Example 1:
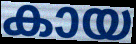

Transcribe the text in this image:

കായ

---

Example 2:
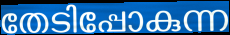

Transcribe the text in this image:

തേടിപ്പോകുന്ന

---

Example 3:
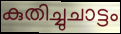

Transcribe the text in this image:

കുതിച്ചുചാട്ടം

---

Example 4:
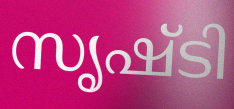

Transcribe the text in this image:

സൃഷ്ടി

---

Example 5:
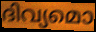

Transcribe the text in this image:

ദിവ്യമൊ